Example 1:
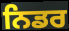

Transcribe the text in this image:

ਨਿਡਰ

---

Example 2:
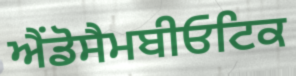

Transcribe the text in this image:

ਐਂਡੋਸੈਮਬੀਓਟਿਕ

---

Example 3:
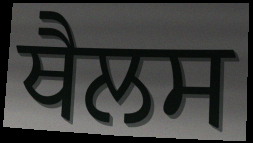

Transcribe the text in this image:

ਥੈਲਸ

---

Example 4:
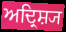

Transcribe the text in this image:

ਅਦ੍ਰਿਸ਼੍ਯ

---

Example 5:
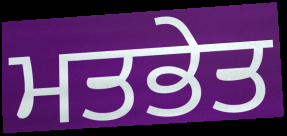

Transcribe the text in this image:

ਮਤਭੇਤ